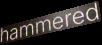
hammered